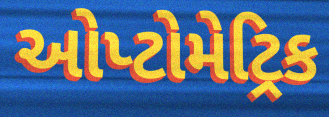
ઓપ્ટોમેટ્રિક